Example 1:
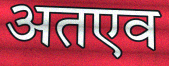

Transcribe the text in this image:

अतएव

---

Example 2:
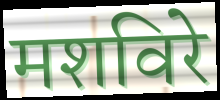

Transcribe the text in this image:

मशविरे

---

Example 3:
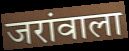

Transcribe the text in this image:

जरांवाला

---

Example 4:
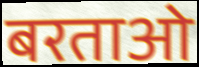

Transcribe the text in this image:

बरताओ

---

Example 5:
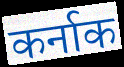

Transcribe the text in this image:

कर्नाक